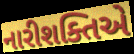
નારીશક્તિએ